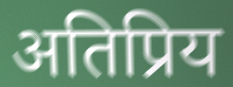
अतिप्रिय